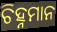
ଚିହ୍ନମାନ